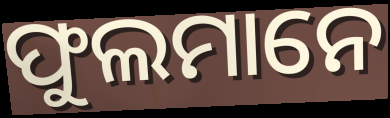
ଫୁଲମାନେ